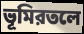
ভূমিরতলে